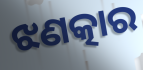
ଝଣତ୍କାର